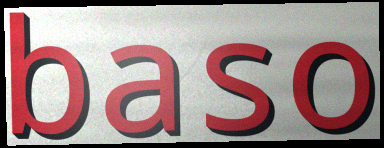
baso